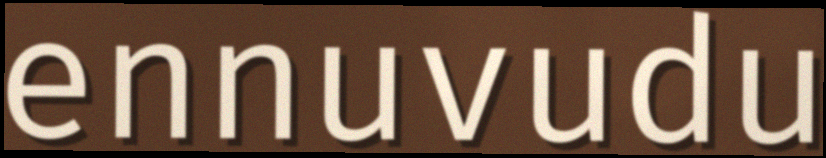
ennuvudu